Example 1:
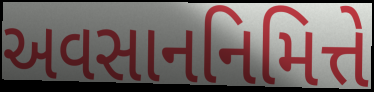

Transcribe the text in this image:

અવસાનનિમિત્તે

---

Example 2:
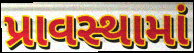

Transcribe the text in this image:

પ્રાવસ્થામાં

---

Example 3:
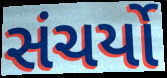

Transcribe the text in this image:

સંચર્યો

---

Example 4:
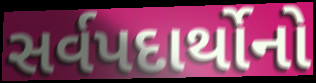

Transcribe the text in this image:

સર્વપદાર્થોનો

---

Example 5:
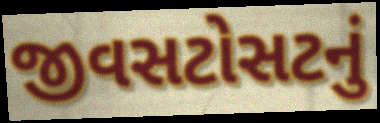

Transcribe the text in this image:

જીવસટોસટનું